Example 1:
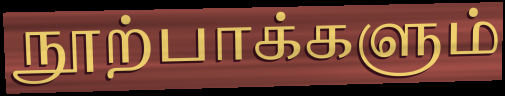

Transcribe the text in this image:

நூற்பாக்களும்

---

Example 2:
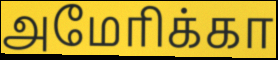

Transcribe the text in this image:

அமேரிக்கா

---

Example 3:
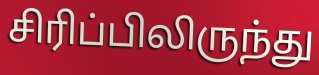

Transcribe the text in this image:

சிரிப்பிலிருந்து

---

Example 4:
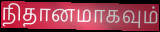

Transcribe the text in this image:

நிதானமாகவும்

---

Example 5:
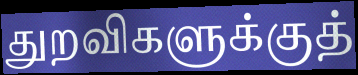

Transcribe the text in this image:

துறவிகளுக்குத்